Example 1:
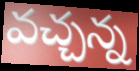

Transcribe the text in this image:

వచ్చన్న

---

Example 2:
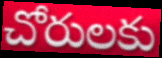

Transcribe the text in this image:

చోరులకు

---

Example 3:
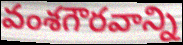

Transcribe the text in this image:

వంశగౌరవాన్ని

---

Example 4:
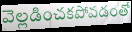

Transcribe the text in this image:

వెల్లడించకపోవడంతో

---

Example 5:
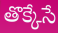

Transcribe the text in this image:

తొక్కేసే